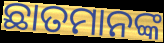
ଛାତମାନଙ୍କ